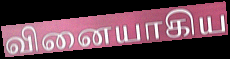
வினையாகிய